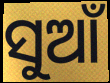
ସୁଆଁ